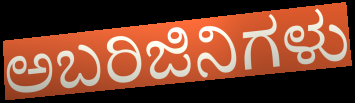
ಅಬರಿಜಿನಿಗಳು